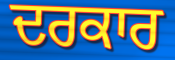
ਦਰਕਾਰ